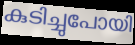
കുടിച്ചുപോയി